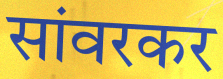
सांवरकर